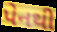
પેનથી